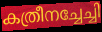
കത്രീനച്ചേച്ചി